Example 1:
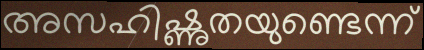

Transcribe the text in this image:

അസഹിഷ്ണുതയുണ്ടെന്ന്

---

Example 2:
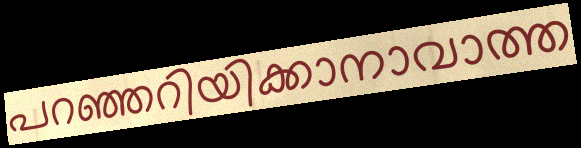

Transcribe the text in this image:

പറഞ്ഞറിയിക്കാനാവാത്ത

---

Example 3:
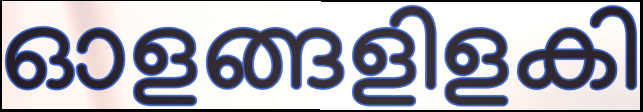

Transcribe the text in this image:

ഓളങ്ങളിളകി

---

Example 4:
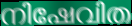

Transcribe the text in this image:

നിഷേവിത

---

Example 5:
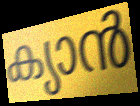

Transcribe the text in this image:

ക്യാൻ